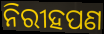
ନିରୀହପଣ